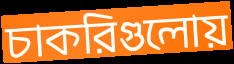
চাকরিগুলোয়